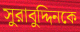
সুরাবুদ্দিনকে